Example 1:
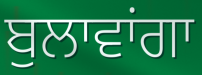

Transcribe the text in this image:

ਬੁਲਾਵਾਂਗਾ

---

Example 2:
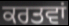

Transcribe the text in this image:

ਕਰਤਵਾਂ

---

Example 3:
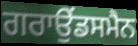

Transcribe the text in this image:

ਗਰਾਉਂਡਸਮੈਨ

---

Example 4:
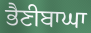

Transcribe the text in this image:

ਭੈਣੀਬਾਘਾ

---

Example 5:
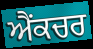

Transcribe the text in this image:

ਐਂਕਚਰ